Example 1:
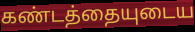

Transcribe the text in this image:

கண்டத்தையுடைய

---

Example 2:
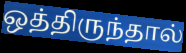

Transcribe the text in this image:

ஒத்திருந்தால்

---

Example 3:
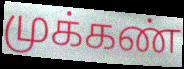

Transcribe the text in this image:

முக்கண்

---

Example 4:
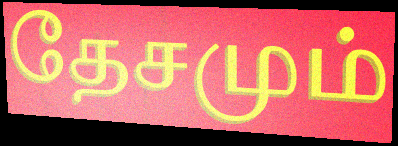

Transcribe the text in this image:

தேசமும்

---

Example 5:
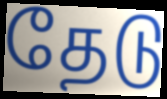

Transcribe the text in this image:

தேடு